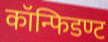
कॉन्फिडण्ट